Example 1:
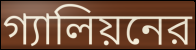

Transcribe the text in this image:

গ্যালিয়নের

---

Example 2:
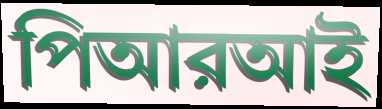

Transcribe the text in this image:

পিআরআই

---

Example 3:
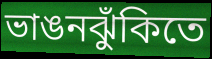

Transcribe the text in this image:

ভাঙনঝুঁকিতে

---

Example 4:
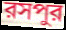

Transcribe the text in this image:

রসপুর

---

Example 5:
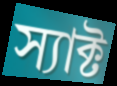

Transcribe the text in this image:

স্যাক্ট